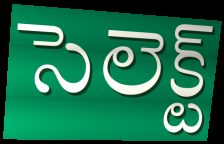
సెలెక్ట్